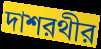
দাশরথীর